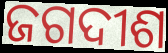
ଜଗଦୀଶ